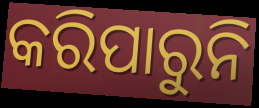
କରିପାରୁନି